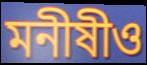
মনীষীও